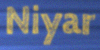
Niyar